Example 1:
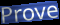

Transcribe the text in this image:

Prove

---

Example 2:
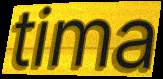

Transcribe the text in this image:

tima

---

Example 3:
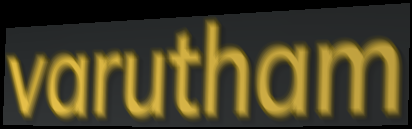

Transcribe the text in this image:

varutham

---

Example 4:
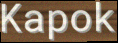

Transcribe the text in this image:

Kapok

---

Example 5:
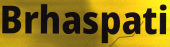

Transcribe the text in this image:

Brhaspati